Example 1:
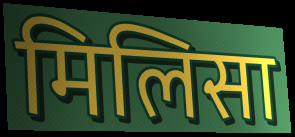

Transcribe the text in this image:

मिलिसा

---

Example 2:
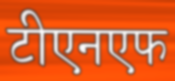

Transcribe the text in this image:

टीएनएफ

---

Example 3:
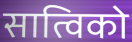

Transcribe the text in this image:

सात्विको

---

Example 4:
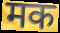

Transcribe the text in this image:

मक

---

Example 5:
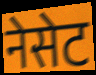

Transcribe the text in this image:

नेसेट